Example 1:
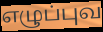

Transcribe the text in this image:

எழுப்புவ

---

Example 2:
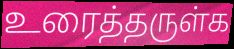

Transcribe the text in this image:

உரைத்தருள்க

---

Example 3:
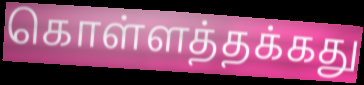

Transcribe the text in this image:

கொள்ளத்தக்கது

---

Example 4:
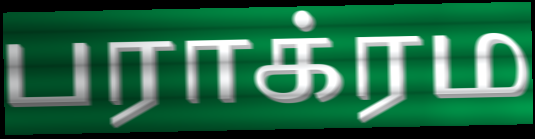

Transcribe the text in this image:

பராக்ரம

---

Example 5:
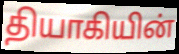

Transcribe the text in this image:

தியாகியின்